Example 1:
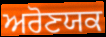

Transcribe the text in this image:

ਅਰੋਣਯਕ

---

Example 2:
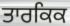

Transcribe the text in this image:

ਤਾਰਕਿਕ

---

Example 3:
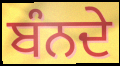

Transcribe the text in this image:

ਬੰਨਦੇ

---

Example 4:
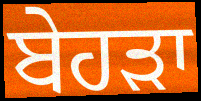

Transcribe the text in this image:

ਬੇਹੜਾ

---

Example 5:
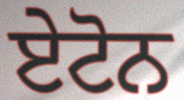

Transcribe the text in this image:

ਏਟੋਨ